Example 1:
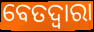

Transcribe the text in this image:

ବେତଦ୍ୱାରା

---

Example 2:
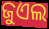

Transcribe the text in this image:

ଜୁଏଲ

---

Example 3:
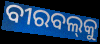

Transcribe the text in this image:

ବୀରବଲ୍‌କୁ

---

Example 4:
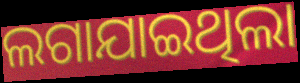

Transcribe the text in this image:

ଲଗାଯାଇଥିଲା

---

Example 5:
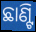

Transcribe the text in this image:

ଛାଣ୍ଟି